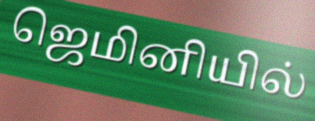
ஜெமினியில்